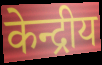
केन्द्रीय